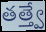
తత్త్వే